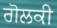
ਗੋਲਕੀ